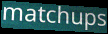
matchups